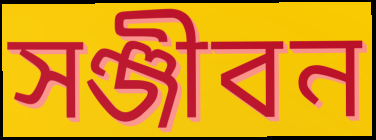
সঞ্জীবন